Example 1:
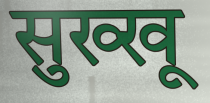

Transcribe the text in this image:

सुख्खू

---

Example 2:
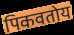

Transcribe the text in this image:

पिकवतोय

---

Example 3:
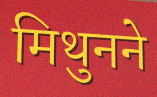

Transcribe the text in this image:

मिथुनने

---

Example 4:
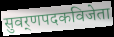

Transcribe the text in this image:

सुवर्णपदकविजेता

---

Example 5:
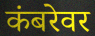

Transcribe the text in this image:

कंबरेवर